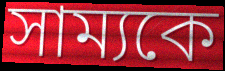
সাম্যকে